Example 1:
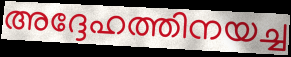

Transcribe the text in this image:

അദ്ദേഹത്തിനയച്ച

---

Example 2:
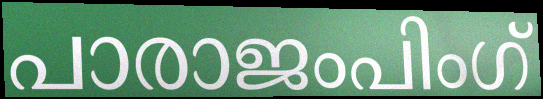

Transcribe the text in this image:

പാരാജംപിംഗ്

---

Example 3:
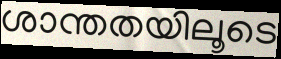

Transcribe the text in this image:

ശാന്തതയിലൂടെ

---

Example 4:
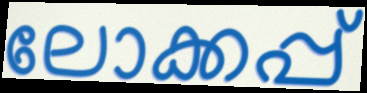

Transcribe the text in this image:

ലോക്കപ്പ്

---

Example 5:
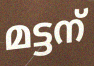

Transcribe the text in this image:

മട്ടന്